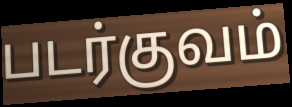
படர்குவம்